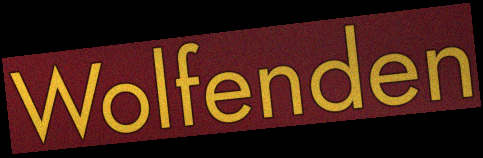
Wolfenden